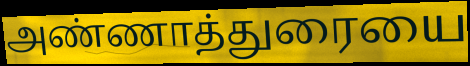
அண்ணாத்துரையை